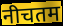
नीचतम